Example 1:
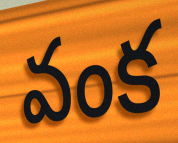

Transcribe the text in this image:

వంక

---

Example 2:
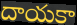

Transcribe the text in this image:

దాయకా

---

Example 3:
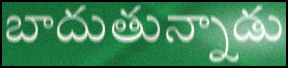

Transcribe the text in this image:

బాదుతున్నాడు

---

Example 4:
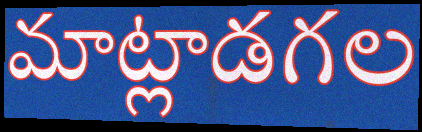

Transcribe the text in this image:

మాట్లాడగల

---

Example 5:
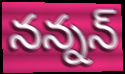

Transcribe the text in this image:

నన్నన్